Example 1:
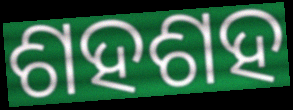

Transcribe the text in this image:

ଶହଶହ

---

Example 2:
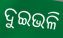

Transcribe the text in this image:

ଦୁଇଭଳି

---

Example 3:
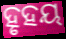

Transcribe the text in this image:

ହୃହୟ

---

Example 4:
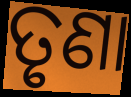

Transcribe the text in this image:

ତୃଣା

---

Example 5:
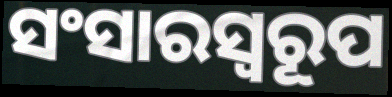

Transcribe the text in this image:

ସଂସାରସ୍ବରୂପ